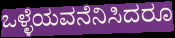
ಒಳ್ಳೆಯವನೆನಿಸಿದರೂ